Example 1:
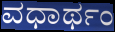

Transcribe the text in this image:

ವಧಾರ್ಥಂ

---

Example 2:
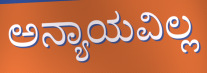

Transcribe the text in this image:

ಅನ್ಯಾಯವಿಲ್ಲ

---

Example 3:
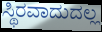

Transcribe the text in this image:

ಸ್ಥಿರವಾದುದಲ್ಲ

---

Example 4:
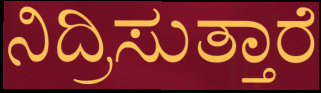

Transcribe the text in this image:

ನಿದ್ರಿಸುತ್ತಾರೆ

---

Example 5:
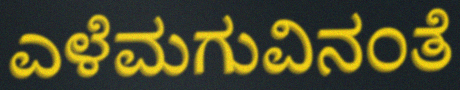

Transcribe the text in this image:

ಎಳೆಮಗುವಿನಂತೆ